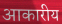
आकारीय